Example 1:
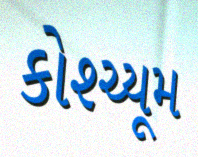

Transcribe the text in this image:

કોશ્ચ્યૂમ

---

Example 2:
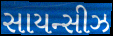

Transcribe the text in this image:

સાયન્સીઝ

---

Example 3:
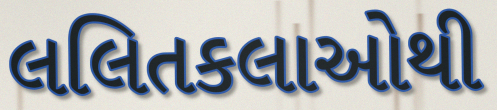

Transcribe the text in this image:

લલિતકલાઓથી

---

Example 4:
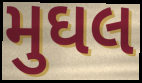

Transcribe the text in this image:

મુઘલ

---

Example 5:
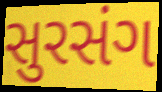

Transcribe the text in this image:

સુરસંગ